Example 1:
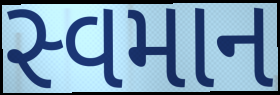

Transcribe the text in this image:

સ્વમાન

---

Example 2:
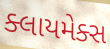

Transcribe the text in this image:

ક્લાયમેક્સ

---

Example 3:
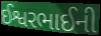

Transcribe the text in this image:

ઈશ્વરભાઈની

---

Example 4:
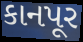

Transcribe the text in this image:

કાનપૂર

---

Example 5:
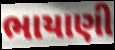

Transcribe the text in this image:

ભાયાણી